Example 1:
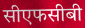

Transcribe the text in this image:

सीएफसीबी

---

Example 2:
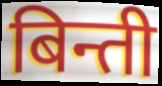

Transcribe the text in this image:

बिन्ती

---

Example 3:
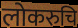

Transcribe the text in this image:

लोकरुचि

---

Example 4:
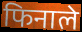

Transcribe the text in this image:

फिनाले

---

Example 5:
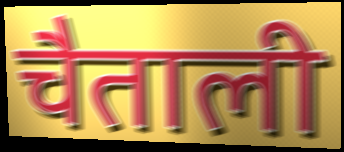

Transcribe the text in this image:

चैताली